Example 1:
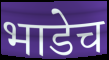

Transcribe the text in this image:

भाडेच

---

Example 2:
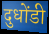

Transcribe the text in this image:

दुधोंडी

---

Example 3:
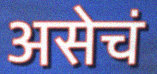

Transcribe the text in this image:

असेचं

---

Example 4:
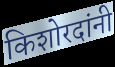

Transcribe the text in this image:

किशोरदांनी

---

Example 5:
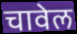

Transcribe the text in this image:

चावेल